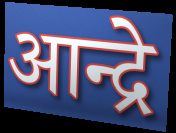
आन्द्रे